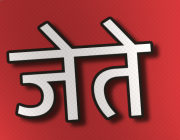
जेते